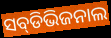
ସବ୍‌ଡିଭିଜନାଲ